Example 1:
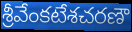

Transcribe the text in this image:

శ్రీవేంకటేశచరణౌ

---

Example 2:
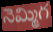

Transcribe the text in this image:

నెమ్మిగ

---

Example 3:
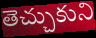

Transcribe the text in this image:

తెచ్చుకుని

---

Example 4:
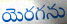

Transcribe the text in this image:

యెరగను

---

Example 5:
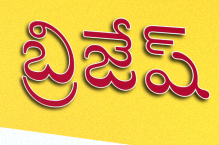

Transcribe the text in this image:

బ్రిజేష్